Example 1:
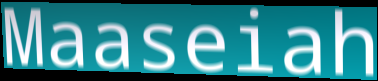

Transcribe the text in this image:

Maaseiah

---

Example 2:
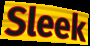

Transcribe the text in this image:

Sleek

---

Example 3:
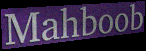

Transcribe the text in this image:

Mahboob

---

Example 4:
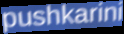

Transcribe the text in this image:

pushkarini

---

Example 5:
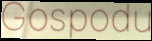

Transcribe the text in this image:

Gospodu